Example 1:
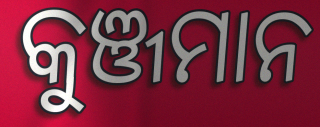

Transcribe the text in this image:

କୁଞ୍ଜମାନ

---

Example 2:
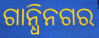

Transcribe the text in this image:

ଗାନ୍ଧିନଗର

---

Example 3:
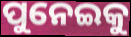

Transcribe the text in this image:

ପୁନେଇକୁ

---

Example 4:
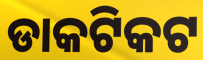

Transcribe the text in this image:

ଡାକଟିକଟ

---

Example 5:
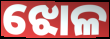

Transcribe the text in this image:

ଝୋଳ